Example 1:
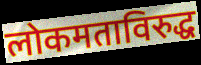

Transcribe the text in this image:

लोकमताविरुद्ध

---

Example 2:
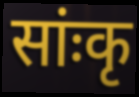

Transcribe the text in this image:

सांःकृ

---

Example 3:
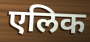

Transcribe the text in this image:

एलिक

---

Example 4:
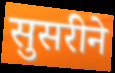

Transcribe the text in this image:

सुसरीने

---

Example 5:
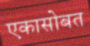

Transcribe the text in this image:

एकासोबत